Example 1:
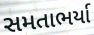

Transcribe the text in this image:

સમતાભર્યા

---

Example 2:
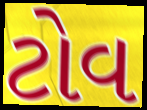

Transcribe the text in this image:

ટોવ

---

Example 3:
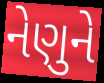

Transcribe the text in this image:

નેણુને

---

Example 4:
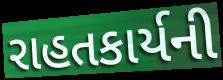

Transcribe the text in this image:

રાહતકાર્યની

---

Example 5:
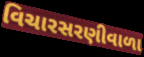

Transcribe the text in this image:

વિચારસરણીવાળા